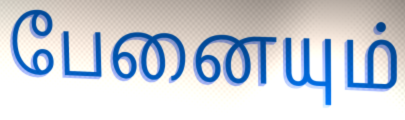
பேனையும்